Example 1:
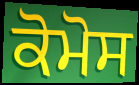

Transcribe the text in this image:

ਕੋਮੋਸ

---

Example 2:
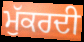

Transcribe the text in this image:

ਮੁੱਕਰਦੀ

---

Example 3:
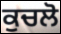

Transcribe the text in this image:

ਕੁਚਲੋ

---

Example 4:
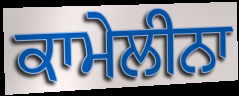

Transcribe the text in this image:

ਕਾਮੇਲੀਨਾ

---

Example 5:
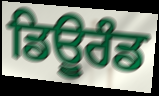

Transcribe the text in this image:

ਡਿਊਰੰਡ